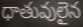
ధాతువులైన